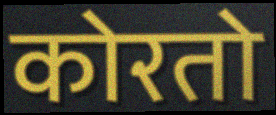
कोरतो